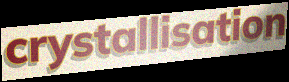
crystallisation